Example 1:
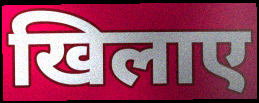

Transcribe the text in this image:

खिलाए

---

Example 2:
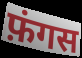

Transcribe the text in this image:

फ़ंगस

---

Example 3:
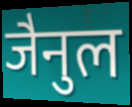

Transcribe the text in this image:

जैनुल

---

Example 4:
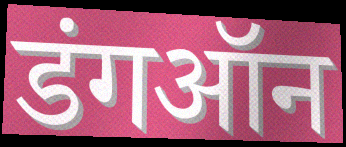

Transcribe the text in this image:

डंगऑन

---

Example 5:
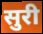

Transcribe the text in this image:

सुरी